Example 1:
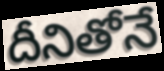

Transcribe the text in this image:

దీనితోనే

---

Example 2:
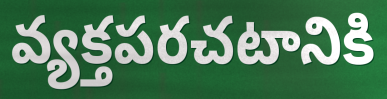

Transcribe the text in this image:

వ్యక్తపరచటానికి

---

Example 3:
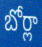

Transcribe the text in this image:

బోర్లా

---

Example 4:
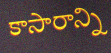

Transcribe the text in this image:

కాసారాన్ని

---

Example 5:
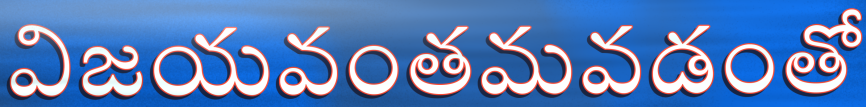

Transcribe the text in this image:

విజయవంతమవడంతో